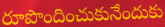
రూపొందించుకునేందుకు